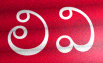
లివి